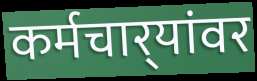
कर्मचार्‍यांवर